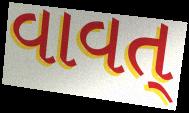
વાવત્